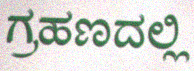
ಗ್ರಹಣದಲ್ಲಿ